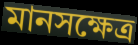
মানসক্ষেত্র